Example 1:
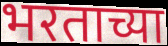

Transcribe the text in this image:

भरताच्या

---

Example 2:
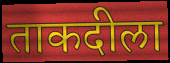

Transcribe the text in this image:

ताकदीला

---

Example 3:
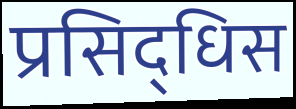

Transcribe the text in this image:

प्रसिद्धिस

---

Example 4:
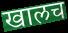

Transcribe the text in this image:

खालच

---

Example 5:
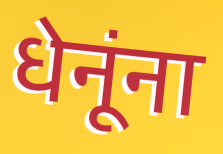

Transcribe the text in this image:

धेनूंना